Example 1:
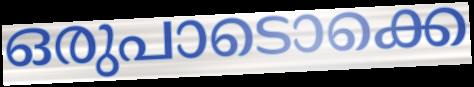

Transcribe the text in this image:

ഒരുപാടൊക്കെ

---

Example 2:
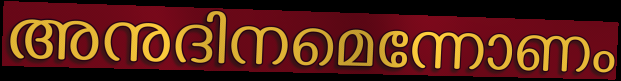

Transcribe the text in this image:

അനുദിനമെന്നോണം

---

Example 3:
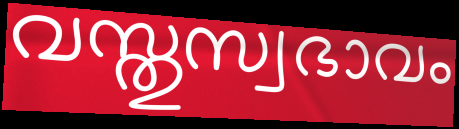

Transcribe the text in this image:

വസ്തുസ്വഭാവം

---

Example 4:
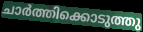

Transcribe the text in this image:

ചാർത്തിക്കൊടുത്തു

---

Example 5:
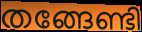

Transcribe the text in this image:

തങ്ങേണ്ടി